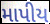
માપીય